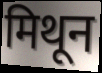
मिथून